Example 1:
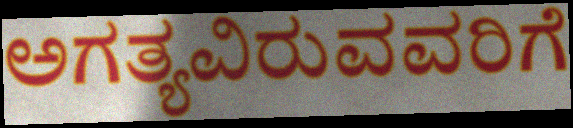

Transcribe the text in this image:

ಅಗತ್ಯವಿರುವವರಿಗೆ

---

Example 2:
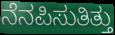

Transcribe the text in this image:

ನೆನಪಿಸುತಿತ್ತು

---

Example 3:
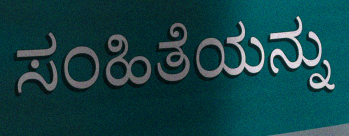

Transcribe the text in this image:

ಸಂಹಿತೆಯನ್ನು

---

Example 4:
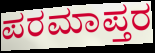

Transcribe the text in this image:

ಪರಮಾಪ್ತರ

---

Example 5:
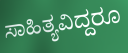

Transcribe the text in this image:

ಸಾಹಿತ್ಯವಿದ್ದರೂ